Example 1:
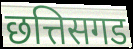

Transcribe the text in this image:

छत्तिसगड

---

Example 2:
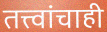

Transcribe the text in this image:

तत्त्वांचाही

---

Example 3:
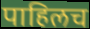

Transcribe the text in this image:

पाहिलच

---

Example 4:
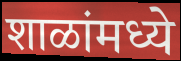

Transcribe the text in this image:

शाळांमध्ये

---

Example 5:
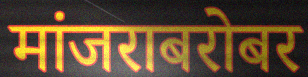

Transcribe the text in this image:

मांजराबरोबर